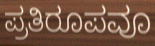
ಪ್ರತಿರೂಪವೂ